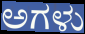
ಅಗಳು